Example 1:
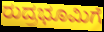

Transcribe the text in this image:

ರುದ್ರಭೂಮಿಗೆ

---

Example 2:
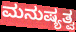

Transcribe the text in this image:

ಮನುಷ್ಯತ್ವ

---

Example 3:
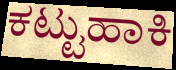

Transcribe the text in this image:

ಕಟ್ಟುಹಾಕಿ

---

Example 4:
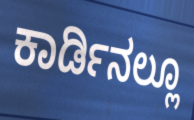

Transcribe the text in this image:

ಕಾರ್ಡಿನಲ್ಲೂ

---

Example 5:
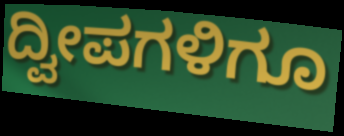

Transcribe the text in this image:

ದ್ವೀಪಗಳಿಗೂ